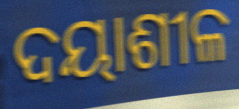
ଦୟାଶୀଳ